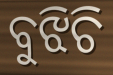
ବୁଝିଚି